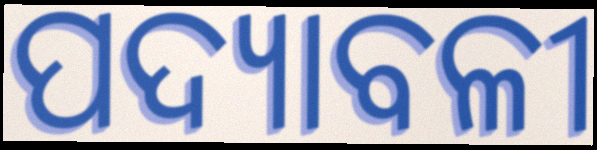
ପଦ୍ୟାବଳୀ